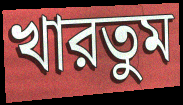
খারতুম